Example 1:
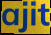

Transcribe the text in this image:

ajit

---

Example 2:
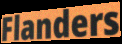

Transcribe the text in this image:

Flanders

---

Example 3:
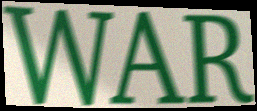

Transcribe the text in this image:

WAR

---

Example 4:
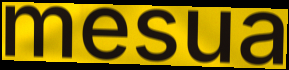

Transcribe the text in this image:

mesua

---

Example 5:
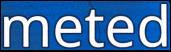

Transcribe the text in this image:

meted